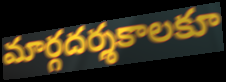
మార్గదర్శకాలకూ